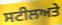
ਸਟੀਲਅਤੇ